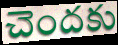
చెందకు